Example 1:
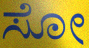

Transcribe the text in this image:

ಸೋ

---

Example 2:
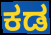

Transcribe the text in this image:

ಕಡ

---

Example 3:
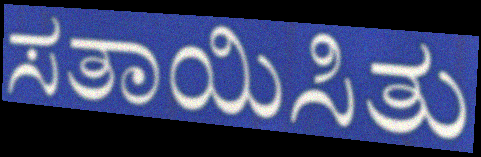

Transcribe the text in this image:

ಸತಾಯಿಸಿತು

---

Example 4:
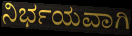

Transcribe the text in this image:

ನಿರ್ಭಯವಾಗಿ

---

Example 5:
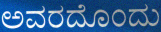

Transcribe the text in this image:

ಅವರದೊಂದು